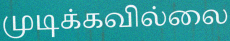
முடிக்கவில்லை